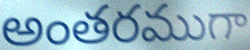
అంతరముగా